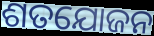
ଶତଯୋଜନ